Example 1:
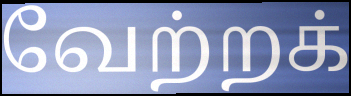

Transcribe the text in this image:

வேற்றக்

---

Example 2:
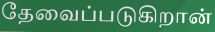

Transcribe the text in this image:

தேவைப்படுகிறான்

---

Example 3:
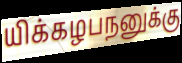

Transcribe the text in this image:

யிக்கழபநனுக்கு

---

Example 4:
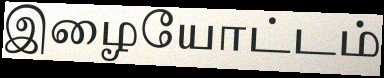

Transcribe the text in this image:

இழையோட்டம்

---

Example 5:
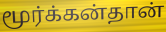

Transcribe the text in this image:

மூர்க்கன்தான்